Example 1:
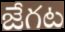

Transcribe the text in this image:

జేగట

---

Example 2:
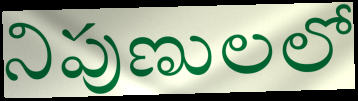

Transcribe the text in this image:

నిపుణులలో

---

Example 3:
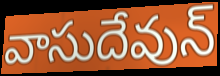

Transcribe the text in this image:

వాసుదేవున్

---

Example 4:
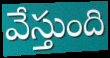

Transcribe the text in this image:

వేస్తుంది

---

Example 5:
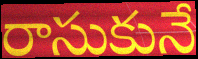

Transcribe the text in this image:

రాసుకునే